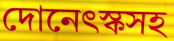
দোনেৎস্কসহ